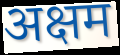
अक्षम